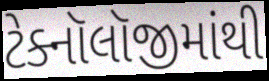
ટેક્નૉલૉજીમાંથી